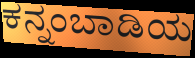
ಕನ್ನಂಬಾಡಿಯ